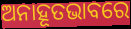
ଅନାହୂତଭାବରେ